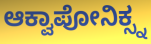
ಆಕ್ವಾಪೋನಿಕ್ಸ್ನ